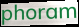
phoram